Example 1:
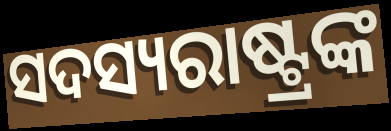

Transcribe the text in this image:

ସଦସ୍ୟରାଷ୍ଟ୍ରଙ୍କ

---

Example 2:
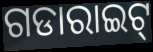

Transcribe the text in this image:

ଗଡାରାଇଟ୍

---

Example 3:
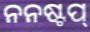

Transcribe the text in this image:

ନନଷ୍ଟପ୍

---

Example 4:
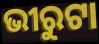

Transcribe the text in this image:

ଭୀରୁଟା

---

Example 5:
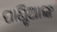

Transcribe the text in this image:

ପାଣ୍ଡିଆଙ୍କ